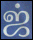
ஜ்